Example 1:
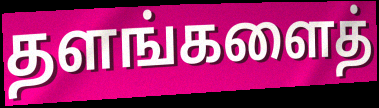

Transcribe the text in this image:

தளங்களைத்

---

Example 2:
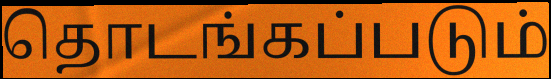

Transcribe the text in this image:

தொடங்கப்படும்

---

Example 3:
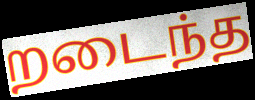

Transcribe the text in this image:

றடைந்த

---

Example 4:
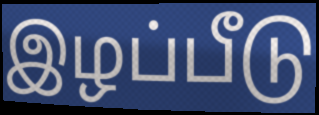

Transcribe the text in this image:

இழப்பீடு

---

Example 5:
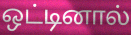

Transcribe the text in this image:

ஒட்டினால்